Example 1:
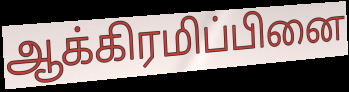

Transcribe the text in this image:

ஆக்கிரமிப்பினை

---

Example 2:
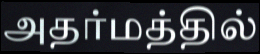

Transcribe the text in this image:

அதர்மத்தில்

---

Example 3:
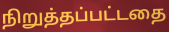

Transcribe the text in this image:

நிறுத்தப்பட்டதை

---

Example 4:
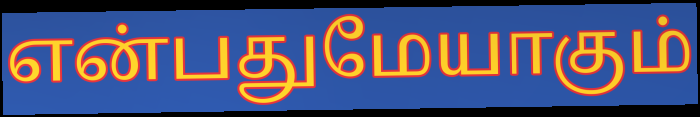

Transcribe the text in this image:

என்பதுமேயாகும்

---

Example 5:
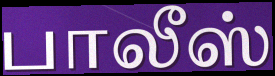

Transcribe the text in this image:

பாலீஸ்